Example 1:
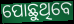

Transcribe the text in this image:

ପୋଛୁଥିବେ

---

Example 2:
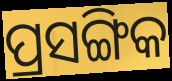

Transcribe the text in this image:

ପ୍ରସଙ୍ଗିକ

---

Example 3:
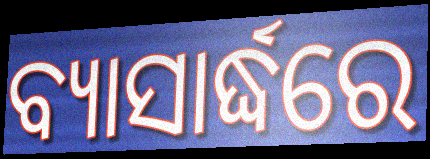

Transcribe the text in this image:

ବ୍ୟାସାର୍ଦ୍ଧରେ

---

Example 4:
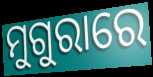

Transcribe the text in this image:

ମୁଗୁରାରେ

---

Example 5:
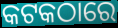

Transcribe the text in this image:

କଟକଠାରେ